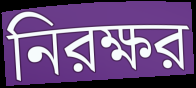
নিরক্ষর